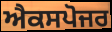
ਐਕਸਪੋਜਰ